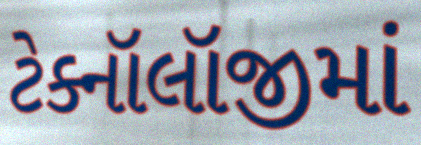
ટેક્નૉલૉજીમાં